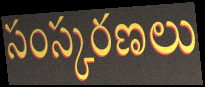
సంస్కరణలు